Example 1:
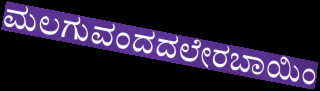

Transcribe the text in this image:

ಮಲಗುವಂದದಲೇರಬಾಯಿಂ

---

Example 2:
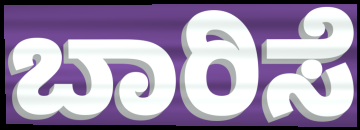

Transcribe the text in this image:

ಬಾರಿಸೆ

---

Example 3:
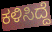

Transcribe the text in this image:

ಕಳಿಸಿದ್ದೆ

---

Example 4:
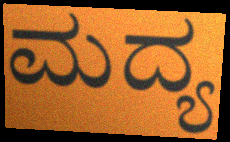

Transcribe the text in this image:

ಮದ್ಯ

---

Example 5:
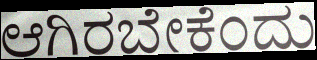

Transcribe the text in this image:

ಆಗಿರಬೇಕೆಂದು